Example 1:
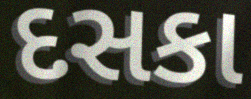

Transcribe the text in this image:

દસકા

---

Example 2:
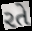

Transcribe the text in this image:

રતે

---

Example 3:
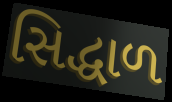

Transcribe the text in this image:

સિદ્ધાળ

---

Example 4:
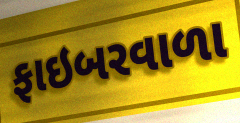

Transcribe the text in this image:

ફાઇબરવાળા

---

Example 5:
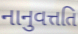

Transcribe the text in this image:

નાનુવત્તતિ